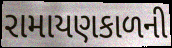
રામાયણકાળની